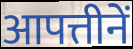
आपत्तीनें